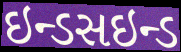
ઇન્ડસઇન્ડ